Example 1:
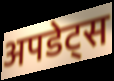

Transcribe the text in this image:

अपडेट्स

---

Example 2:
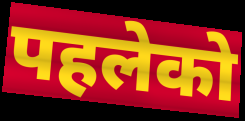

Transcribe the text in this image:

पहलेको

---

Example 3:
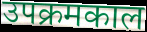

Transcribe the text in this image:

उपक्रमकाल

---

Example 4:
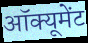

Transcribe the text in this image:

ऑक्यूमेंट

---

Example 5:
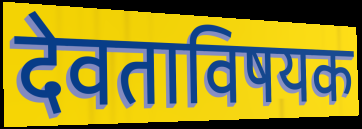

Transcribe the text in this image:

देवताविषयक